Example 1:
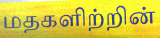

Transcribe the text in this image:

மதகளிற்றின்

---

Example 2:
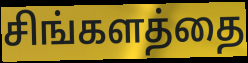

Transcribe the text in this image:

சிங்களத்தை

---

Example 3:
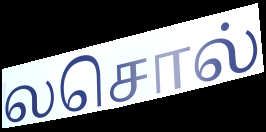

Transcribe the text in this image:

லசொல்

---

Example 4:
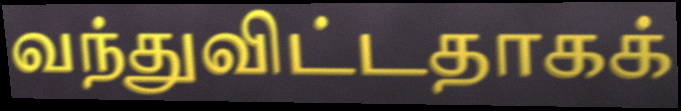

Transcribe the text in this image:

வந்துவிட்டதாகக்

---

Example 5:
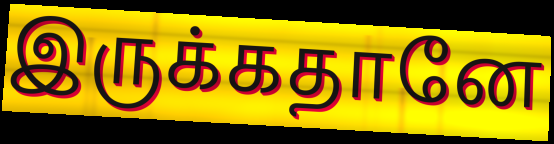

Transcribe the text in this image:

இருக்கதானே